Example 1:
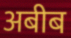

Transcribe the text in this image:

अबीब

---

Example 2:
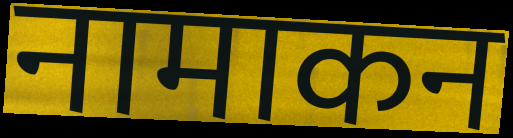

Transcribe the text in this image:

नामाकन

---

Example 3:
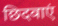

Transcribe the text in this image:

छिदवाएं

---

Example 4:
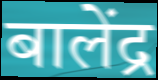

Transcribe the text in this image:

बालेंद्र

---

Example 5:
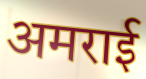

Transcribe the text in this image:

अमराई